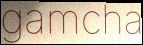
gamcha